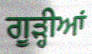
ਗੂੜ੍ਹੀਆਂ